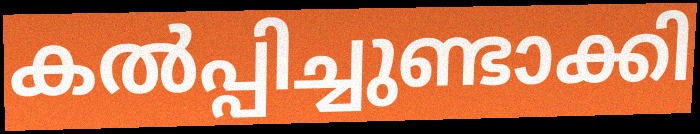
കൽപ്പിച്ചുണ്ടാക്കി